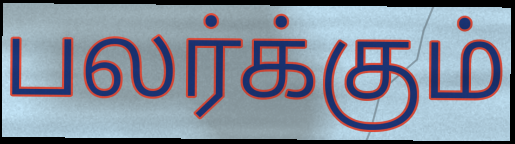
பலர்க்கும்